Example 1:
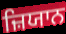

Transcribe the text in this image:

ਜ਼ਿਯਾਨ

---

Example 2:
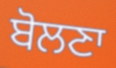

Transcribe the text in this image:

ਬੋਲਣਾ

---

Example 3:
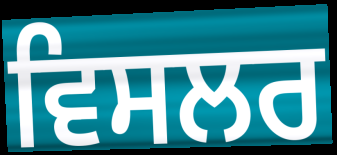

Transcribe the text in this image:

ਵਿਸਲਰ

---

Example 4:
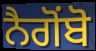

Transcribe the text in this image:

ਨੈਗੋਂਬੋ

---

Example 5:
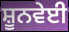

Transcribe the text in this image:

ਸ਼ੂਨਵੇਈ